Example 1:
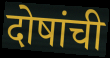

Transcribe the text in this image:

दोषांची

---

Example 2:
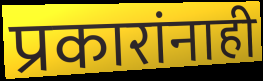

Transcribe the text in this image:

प्रकारांनाही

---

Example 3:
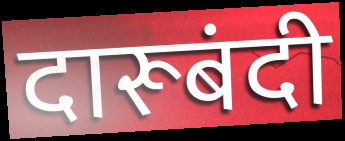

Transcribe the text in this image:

दारूबंदी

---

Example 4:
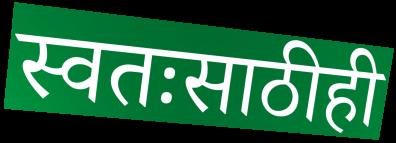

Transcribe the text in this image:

स्वतःसाठीही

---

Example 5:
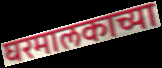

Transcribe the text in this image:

घरमालकाच्या